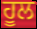
ਹੂਲ